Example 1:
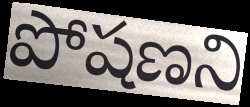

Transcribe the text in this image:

పోషణని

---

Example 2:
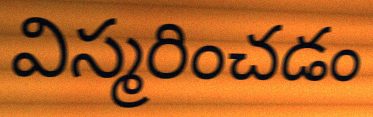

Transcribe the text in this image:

విస్మరించడం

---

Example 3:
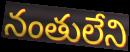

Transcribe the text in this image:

నంతులేని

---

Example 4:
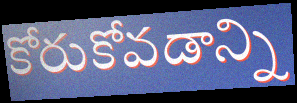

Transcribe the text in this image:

కోరుకోవడాన్ని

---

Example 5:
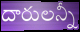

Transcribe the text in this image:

దారులన్నీ